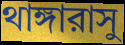
থাঙ্গারাসু